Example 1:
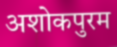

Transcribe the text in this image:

अशोकपुरम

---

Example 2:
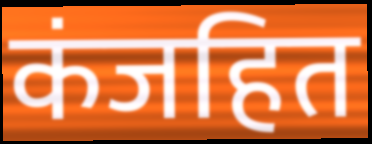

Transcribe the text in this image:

कंजहित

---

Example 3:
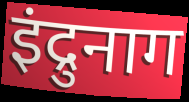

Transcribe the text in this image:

इंद्रुनाग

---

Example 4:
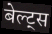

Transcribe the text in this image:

बेल्ट्स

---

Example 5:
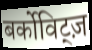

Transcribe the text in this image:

बर्कोविट्ज़